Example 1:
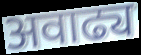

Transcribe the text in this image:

अवाढ्य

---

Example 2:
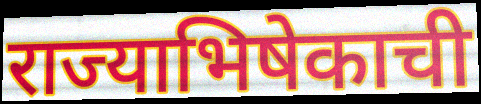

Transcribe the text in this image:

राज्याभिषेकाची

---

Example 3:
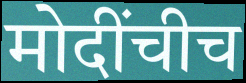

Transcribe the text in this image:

मोदींचीच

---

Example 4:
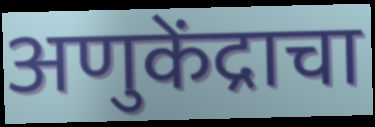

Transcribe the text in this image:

अणुकेंद्राचा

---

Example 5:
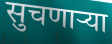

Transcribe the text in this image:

सुचणाऱ्या